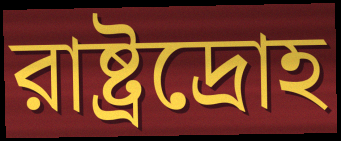
রাষ্ট্রদ্রোহ